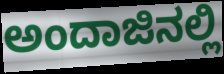
ಅಂದಾಜಿನಲ್ಲಿ